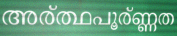
അര്ത്ഥപൂര്ണ്ണത